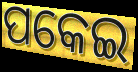
ପକେଇ